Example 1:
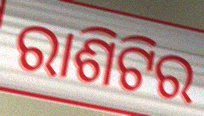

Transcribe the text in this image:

ରାଶିଟିର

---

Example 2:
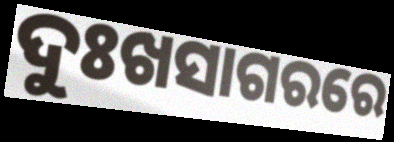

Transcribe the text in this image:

ଦୁଃଖସାଗରରେ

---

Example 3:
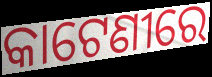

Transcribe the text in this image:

କାଟେଣୀରେ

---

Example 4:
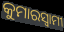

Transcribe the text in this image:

କୁମାରସ୍ୱାମୀ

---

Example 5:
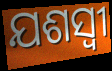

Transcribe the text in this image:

ଯଶସ୍ବୀ